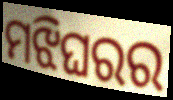
ମଝିଘରର